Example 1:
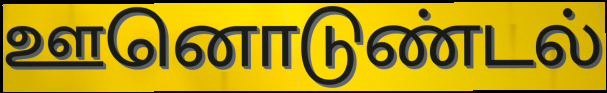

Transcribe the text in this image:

ஊனொடுண்டல்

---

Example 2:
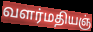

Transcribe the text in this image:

வளர்மதியஞ்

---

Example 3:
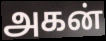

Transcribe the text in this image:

அகன்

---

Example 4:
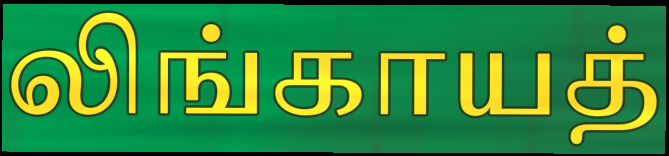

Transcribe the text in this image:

லிங்காயத்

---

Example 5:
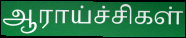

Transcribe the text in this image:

ஆராய்ச்சிகள்